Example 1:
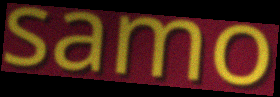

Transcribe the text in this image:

samo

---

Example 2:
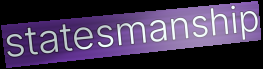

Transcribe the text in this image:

statesmanship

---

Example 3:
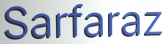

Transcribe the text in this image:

Sarfaraz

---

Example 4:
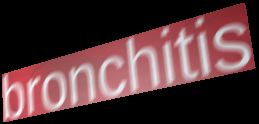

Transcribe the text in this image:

bronchitis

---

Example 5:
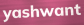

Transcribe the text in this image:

yashwant